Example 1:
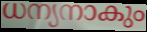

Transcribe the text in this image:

ധന്യനാകും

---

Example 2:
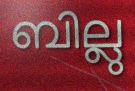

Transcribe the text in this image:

ബില്ലു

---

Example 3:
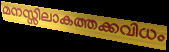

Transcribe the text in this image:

മനസ്സിലാകത്തക്കവിധം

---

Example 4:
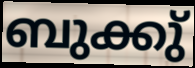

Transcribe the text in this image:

ബുക്കു്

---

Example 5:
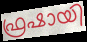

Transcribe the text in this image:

ഫ്രഷായി